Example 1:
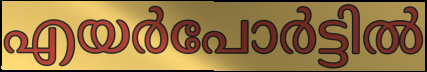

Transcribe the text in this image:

എയർപോർട്ടിൽ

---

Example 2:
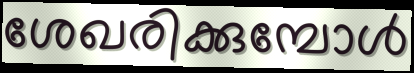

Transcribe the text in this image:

ശേഖരിക്കുമ്പോൾ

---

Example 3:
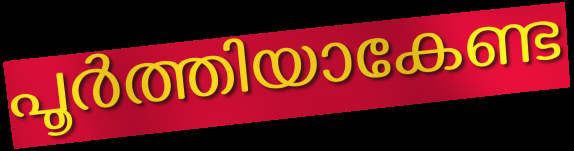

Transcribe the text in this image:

പൂർത്തിയാകേണ്ട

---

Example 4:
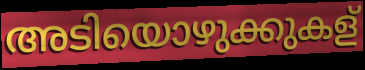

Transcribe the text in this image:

അടിയൊഴുക്കുകള്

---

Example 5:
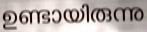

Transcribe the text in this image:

ഉണ്ടായിരുന്നു